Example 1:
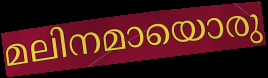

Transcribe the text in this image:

മലിനമായൊരു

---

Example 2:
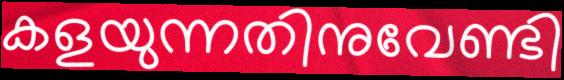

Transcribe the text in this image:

കളയുന്നതിനുവേണ്ടി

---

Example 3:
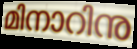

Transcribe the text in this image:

മിനാറിനു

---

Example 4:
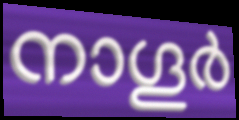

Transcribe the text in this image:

നാഗൂർ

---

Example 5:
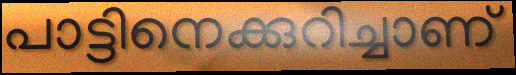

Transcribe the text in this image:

പാട്ടിനെക്കുറിച്ചാണ്